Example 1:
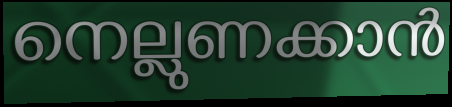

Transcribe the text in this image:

നെല്ലുണക്കാൻ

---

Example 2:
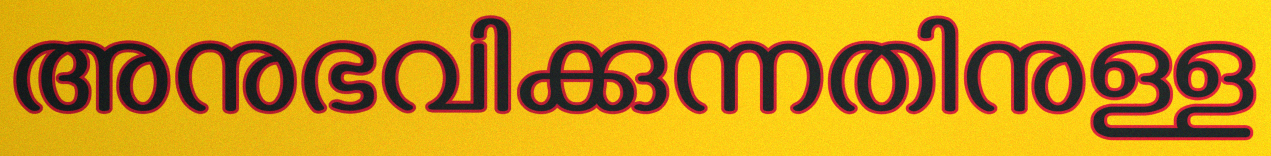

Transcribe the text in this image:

അനുഭവിക്കുന്നതിനുള്ള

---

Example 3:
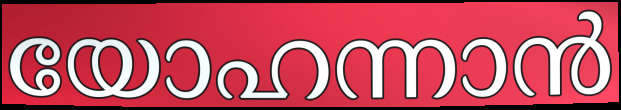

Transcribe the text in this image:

യോഹന്നാൻ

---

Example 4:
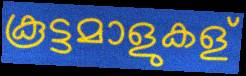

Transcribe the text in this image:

കൂട്ടമാളുകള്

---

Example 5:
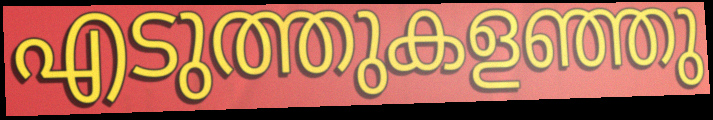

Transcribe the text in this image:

എടുത്തുകളഞ്ഞു